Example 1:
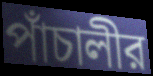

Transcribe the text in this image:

পাঁচালীর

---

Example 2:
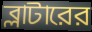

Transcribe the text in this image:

ব্লাটারের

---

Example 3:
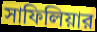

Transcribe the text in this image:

সাফিলিয়ার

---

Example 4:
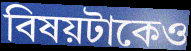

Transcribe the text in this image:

বিষয়টাকেও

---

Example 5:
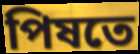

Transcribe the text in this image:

পিষতে